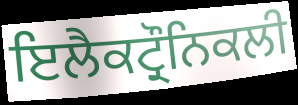
ਇਲੈਕਟ੍ਰੌਨਿਕਲੀ